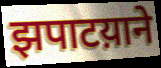
झपाटय़ाने